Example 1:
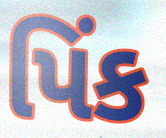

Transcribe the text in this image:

પિંક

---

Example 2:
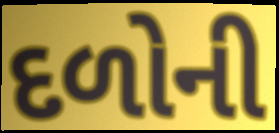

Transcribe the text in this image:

દળોની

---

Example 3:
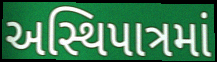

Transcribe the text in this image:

અસ્થિપાત્રમાં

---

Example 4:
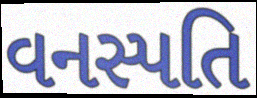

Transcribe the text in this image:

વનસ્પતિ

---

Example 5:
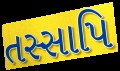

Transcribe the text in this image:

તસ્સાપિ